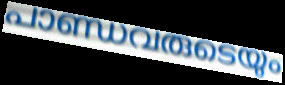
പാണ്ഡവരുടെയും